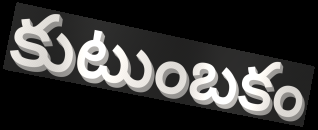
కుటుంబకం